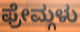
ಫ್ರೇಮ್ಗಳು